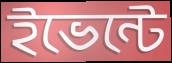
ইভেন্টে